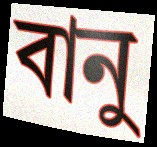
বানু